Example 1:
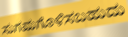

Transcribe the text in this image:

ಸುಗಮಗೊಳಿಸಬಹುದು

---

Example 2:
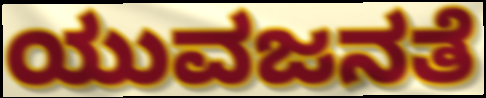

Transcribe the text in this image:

ಯುವಜನತೆ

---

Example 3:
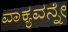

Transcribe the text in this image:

ವಾಕ್ಯವನ್ನೇ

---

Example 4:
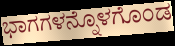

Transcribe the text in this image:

ಭಾಗಗಳನ್ನೊಳಗೊಂಡ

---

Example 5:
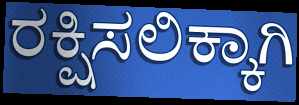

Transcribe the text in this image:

ರಕ್ಷಿಸಲಿಕ್ಕಾಗಿ